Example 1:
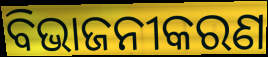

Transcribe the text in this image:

ବିଭାଜନୀକରଣ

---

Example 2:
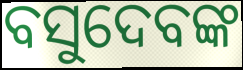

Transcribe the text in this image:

ବସୁଦେବଙ୍କ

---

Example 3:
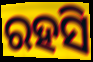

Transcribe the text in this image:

ରହସି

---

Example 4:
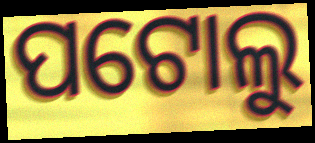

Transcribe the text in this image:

ପଟୋଲୁ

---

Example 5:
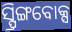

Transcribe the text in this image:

ସ୍ପ୍ରିଙ୍ଗବୋକ୍ସ